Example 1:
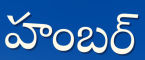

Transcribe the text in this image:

హంబర్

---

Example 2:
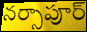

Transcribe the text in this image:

నర్సాపూర్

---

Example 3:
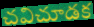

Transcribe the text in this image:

చవిచూడక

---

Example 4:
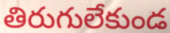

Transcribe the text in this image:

తిరుగులేకుండ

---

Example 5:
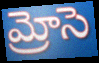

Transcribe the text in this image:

మ్రోసె